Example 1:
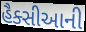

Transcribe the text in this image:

હૈક્સીઆની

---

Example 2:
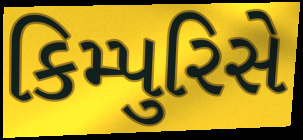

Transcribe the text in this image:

કિમ્પુરિસે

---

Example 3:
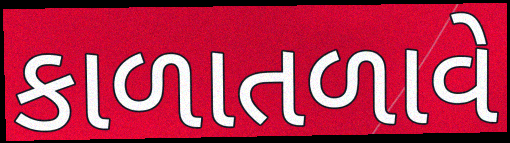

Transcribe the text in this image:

કાળાતળાવે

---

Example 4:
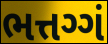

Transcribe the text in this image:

ભત્તગ્ગં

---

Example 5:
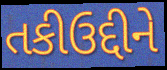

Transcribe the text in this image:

તકીઉદ્દીને